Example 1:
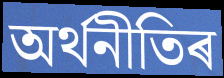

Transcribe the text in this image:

অৰ্থনীতিৰ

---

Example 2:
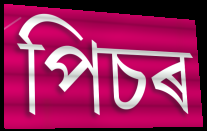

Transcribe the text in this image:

পিচৰ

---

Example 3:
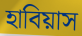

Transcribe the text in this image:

হাবিয়াস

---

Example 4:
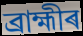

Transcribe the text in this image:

ব্ৰাহ্মীৰ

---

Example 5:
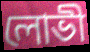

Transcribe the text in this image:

লোভী